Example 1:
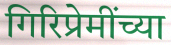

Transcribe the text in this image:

गिरिप्रेमींच्या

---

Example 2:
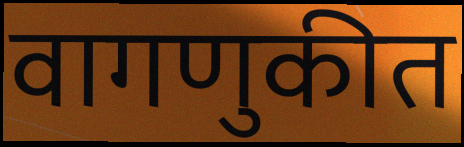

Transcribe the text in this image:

वागणुकीत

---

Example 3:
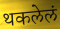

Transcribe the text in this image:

थकलेलं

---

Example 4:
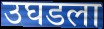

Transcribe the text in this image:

उघडला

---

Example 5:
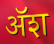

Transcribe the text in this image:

ॲश